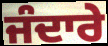
ਜੰਦਾਰੇ